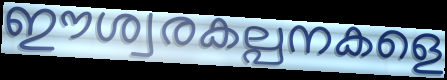
ഈശ്വരകല്പനകളെ